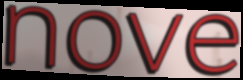
nove